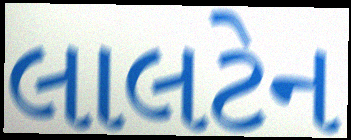
લાલટેન